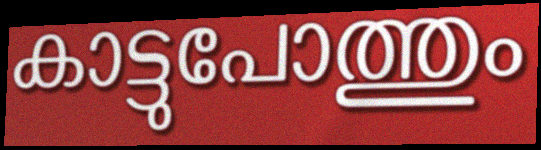
കാട്ടുപോത്തും